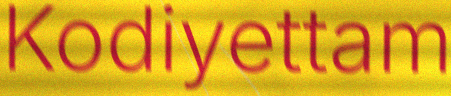
Kodiyettam